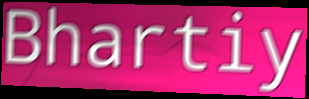
Bhartiy